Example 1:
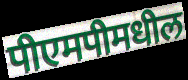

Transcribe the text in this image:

पीएमपीमधील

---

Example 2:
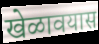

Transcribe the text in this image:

खेळावयास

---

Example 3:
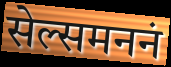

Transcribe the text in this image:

सेल्समननं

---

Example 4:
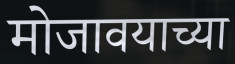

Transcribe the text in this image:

मोजावयाच्या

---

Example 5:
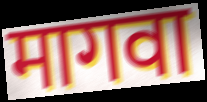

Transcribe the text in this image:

मागवा